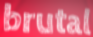
brutal